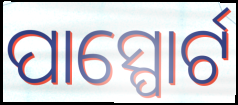
ପାସ୍ପୋର୍ଟ